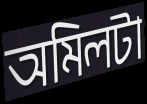
অমিলটা